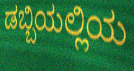
ಡಬ್ಬಿಯಲ್ಲಿಯ